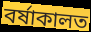
বৰ্ষাকালত